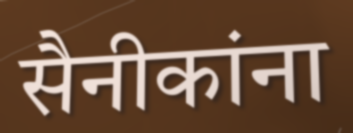
सैनीकांना